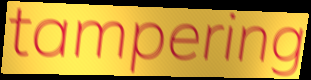
tampering